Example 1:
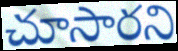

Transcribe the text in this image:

చూసారని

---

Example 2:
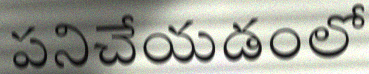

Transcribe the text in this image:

పనిచేయడంలో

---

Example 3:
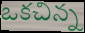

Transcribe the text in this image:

ఒకచిన్న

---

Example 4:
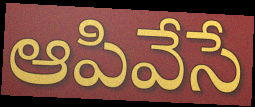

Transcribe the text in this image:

ఆపివేసే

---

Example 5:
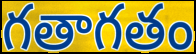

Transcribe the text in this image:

గతాగతం